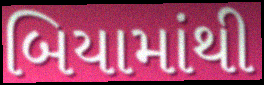
બિયામાંથી